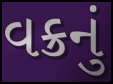
વક્રનું